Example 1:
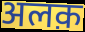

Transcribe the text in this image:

अलक़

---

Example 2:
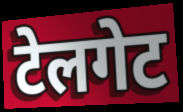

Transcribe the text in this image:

टेलगेट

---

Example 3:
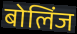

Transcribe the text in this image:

बोलिंज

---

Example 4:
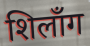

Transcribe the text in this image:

शिलाँग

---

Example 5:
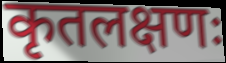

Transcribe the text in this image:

कृतलक्षणः